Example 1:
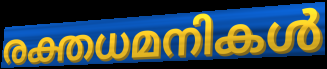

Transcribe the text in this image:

രക്തധമനികൾ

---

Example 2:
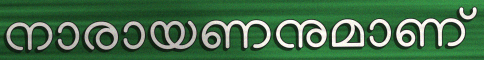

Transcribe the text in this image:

നാരായണനുമാണ്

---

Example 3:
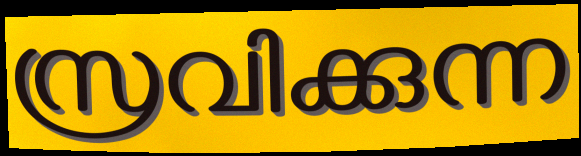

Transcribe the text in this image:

സ്രവിക്കുന്ന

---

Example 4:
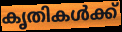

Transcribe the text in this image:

കൃതികൾക്ക്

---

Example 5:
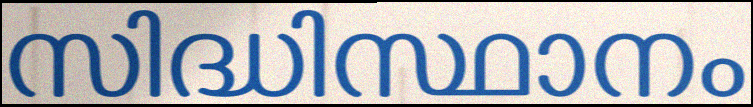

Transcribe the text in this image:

സിദ്ധിസ്ഥാനം